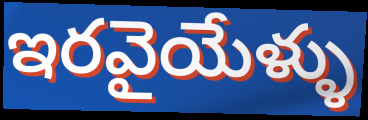
ఇరవైయేళ్ళు